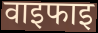
वाइफाइ